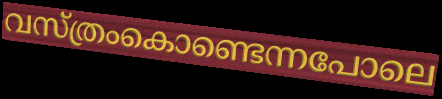
വസ്ത്രംകൊണ്ടെന്നപോലെ